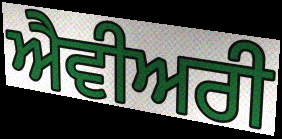
ਐਵੀਅਰੀ